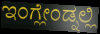
ಇಂಗ್ಲೇಂಡ್ನಲ್ಲಿ